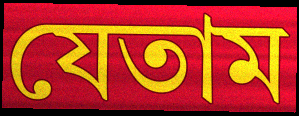
যেতাম